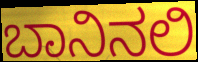
ಬಾನಿನಲಿ